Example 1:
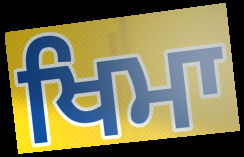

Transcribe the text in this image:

ਖਿਮਾ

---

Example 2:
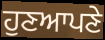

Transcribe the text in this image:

ਹੁਣਆਪਣੇ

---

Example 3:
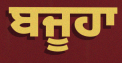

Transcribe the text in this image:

ਬਜੂਹਾ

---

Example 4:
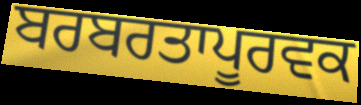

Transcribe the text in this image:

ਬਰਬਰਤਾਪੂਰਵਕ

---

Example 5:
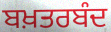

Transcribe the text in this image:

ਬਖ਼ਤਰਬੰਦ